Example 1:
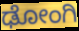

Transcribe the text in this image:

ಢೋಂಗಿ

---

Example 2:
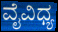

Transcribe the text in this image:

ವೈವಿಧ್ಯ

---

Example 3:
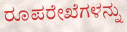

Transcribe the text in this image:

ರೂಪರೇಖೆಗಳನ್ನು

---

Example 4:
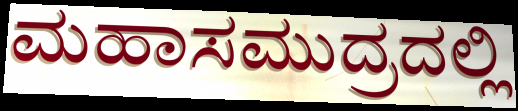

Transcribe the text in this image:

ಮಹಾಸಮುದ್ರದಲ್ಲಿ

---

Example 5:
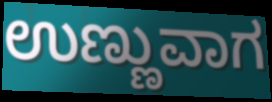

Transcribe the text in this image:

ಉಣ್ಣುವಾಗ